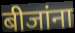
बीजांना